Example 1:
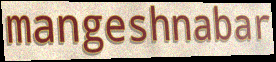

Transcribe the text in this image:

mangeshnabar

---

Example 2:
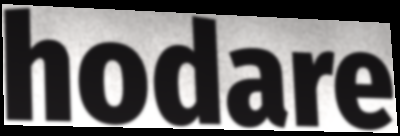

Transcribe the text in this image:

hodare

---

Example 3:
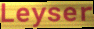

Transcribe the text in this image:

Leyser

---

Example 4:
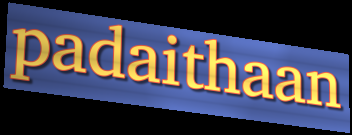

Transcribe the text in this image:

padaithaan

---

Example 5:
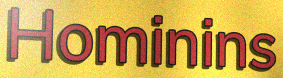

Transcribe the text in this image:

Hominins